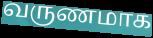
வருணமாக